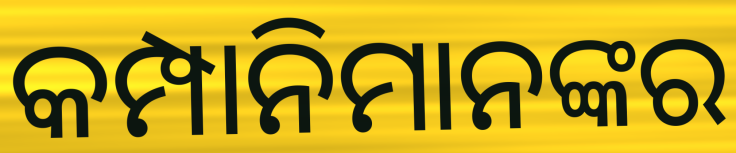
କମ୍ପାନିମାନଙ୍କର